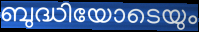
ബുദ്ധിയോടെയും